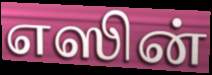
எஸின்